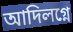
আদিলগ্নে